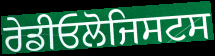
ਰੇਡੀਓਲੋਜਿਸਟਸ